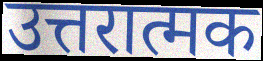
उत्तरात्मक